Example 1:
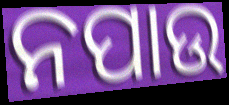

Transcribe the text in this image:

ନପାଉ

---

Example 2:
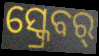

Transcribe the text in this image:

ସ୍କ୍ରେବର୍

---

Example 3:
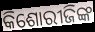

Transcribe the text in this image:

କିଶୋରୀଜିଙ୍କ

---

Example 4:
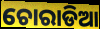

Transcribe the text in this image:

ଚୋରାଡିଆ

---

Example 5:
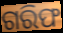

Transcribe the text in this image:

ଗରିଫ